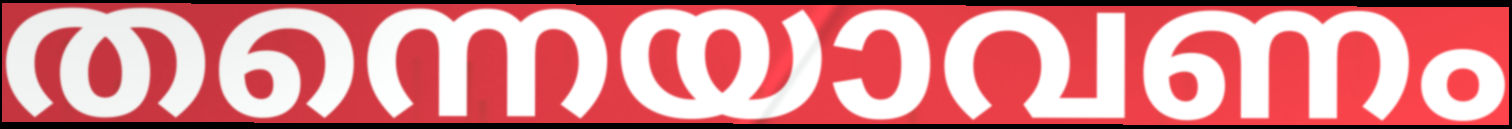
തന്നെയാവണം